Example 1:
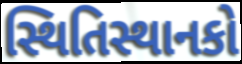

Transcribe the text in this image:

સ્થિતિસ્થાનકો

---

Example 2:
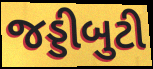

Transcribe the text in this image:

જડ્ડીબુટી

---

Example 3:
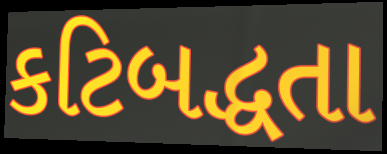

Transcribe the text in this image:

કટિબદ્ધતા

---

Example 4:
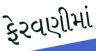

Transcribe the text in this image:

ફેરવણીમાં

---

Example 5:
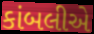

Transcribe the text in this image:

કાંબલીએ